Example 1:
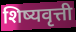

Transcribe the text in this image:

शिष्यवृत्ती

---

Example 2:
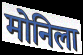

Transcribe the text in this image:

मोनिला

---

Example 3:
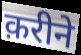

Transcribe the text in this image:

क़रीने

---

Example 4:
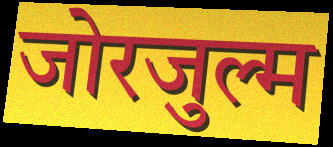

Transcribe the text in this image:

जोरजुल्म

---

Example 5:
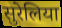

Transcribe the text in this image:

सुरेलिया